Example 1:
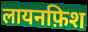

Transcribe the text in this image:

लायनफ़िश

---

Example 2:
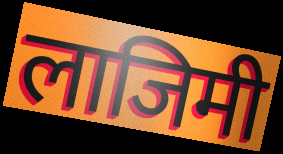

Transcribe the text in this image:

लाजिमी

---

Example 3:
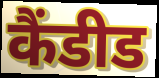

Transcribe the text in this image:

कैंडीड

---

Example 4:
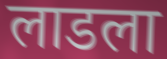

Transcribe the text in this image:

लाडला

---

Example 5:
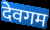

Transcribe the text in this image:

देवगम